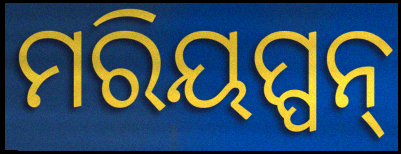
ମରିୟପ୍ପନ୍